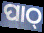
ପାଠ୍